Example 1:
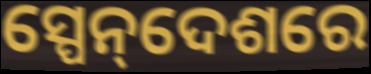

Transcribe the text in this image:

ସ୍ପେନ୍‌ଦେଶରେ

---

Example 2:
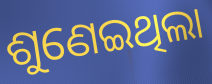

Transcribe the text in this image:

ଶୁଣେଇଥିଲା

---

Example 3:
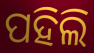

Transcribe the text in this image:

ପହିଲି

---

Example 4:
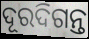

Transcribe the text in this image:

ଦୂରଦିଗନ୍ତ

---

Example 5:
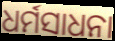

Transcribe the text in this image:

ଧର୍ମସାଧନା